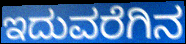
ಇದುವರೆಗಿನ